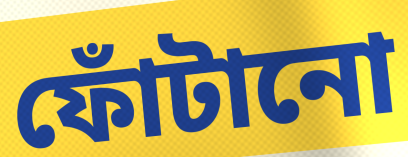
ফোঁটানো